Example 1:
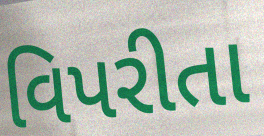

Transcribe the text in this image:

વિપરીતા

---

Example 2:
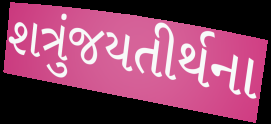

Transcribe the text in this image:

શત્રુંજયતીર્થના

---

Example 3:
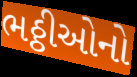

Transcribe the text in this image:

ભઠ્ઠીઓનો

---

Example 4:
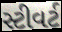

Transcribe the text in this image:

સ્ટીવર્ટ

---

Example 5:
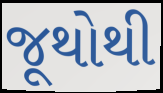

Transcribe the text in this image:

જૂથોથી